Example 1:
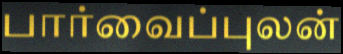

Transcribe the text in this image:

பார்வைப்புலன்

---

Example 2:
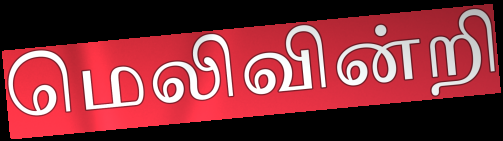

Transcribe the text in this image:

மெலிவின்றி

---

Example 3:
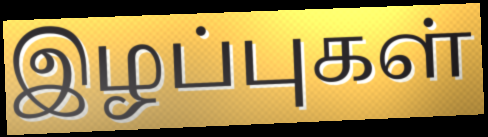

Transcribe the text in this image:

இழப்புகள்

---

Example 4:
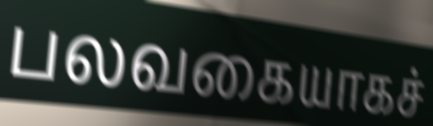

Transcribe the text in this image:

பலவகையாகச்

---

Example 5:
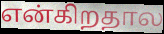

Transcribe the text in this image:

என்கிறதால